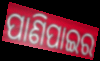
ପାଣିପାଇର